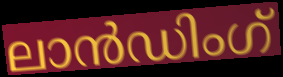
ലാൻഡിംഗ്